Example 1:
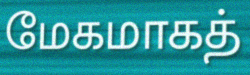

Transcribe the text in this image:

மேகமாகத்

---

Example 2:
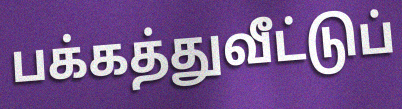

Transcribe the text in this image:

பக்கத்துவீட்டுப்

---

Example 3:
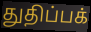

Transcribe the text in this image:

துதிப்பக்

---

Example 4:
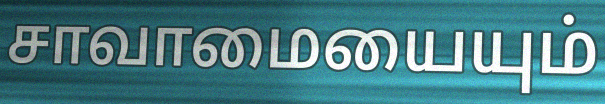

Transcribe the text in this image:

சாவாமையையும்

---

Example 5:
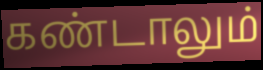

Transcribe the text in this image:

கண்டாலும்